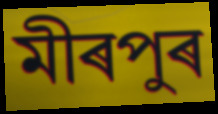
মীৰপুৰ